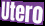
Utero